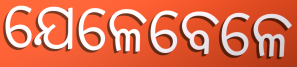
ଯେଳେବେଳେ